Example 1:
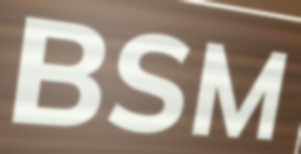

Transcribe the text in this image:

BSM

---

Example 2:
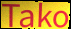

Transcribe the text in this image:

Tako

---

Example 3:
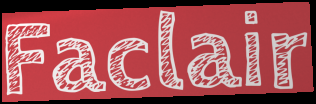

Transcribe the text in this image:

Faclair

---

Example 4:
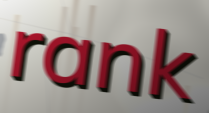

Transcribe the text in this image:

rank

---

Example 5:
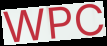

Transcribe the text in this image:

WPC